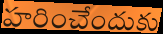
హరించేందుకు